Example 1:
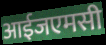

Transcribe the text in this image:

आईजएमसी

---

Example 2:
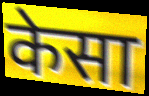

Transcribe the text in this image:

केसा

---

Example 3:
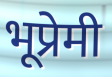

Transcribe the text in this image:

भूप्रेमी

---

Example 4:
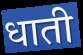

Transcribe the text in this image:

धाती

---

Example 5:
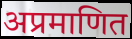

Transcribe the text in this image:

अप्रमाणित